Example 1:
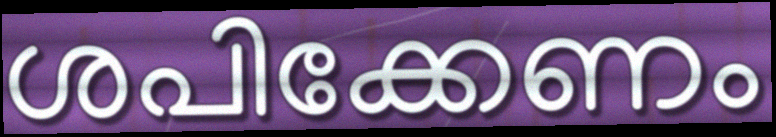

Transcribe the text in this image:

ശപിക്കേണം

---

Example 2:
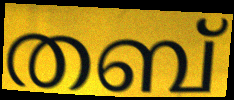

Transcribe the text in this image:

തബ്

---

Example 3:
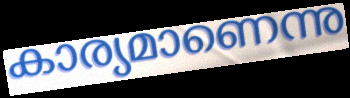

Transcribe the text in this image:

കാര്യമാണെന്നു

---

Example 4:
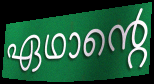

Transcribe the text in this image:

ഏഥാന്റെ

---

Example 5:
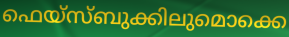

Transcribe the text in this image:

ഫെയ്സ്ബുക്കിലുമൊക്കെ